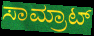
ಸಾಮ್ರಾಟ್